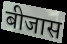
बीजास